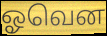
ஓவென